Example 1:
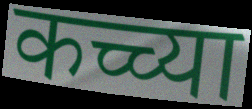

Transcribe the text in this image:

कच्च्या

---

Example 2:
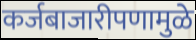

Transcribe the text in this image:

कर्जबाजारीपणामुळे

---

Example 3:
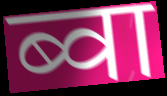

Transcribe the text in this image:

ब्वा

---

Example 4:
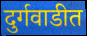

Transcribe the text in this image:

दुर्गवाडीत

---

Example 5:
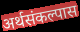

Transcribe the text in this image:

अर्थसंकल्पास